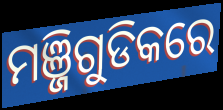
ମଞ୍ଜିଗୁଡିକରେ